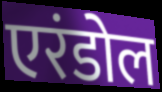
एरंडोल